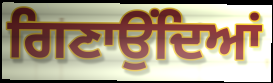
ਗਿਣਾਉਂਦਿਆਂ